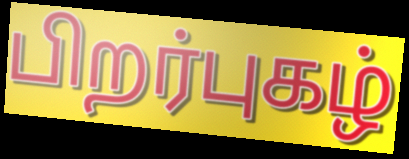
பிறர்புகழ்